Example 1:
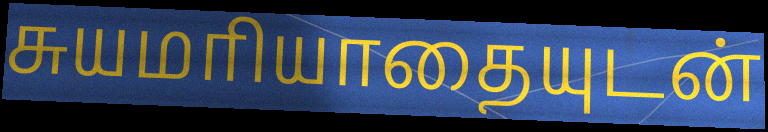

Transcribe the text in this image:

சுயமரியாதையுடன்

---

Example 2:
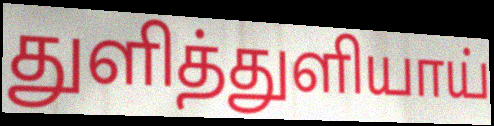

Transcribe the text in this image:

துளித்துளியாய்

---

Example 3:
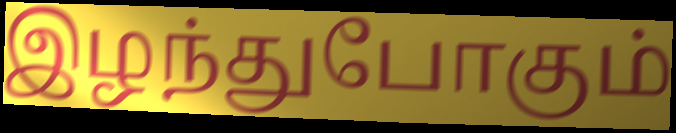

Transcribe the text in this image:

இழந்துபோகும்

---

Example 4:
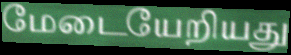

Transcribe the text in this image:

மேடையேறியது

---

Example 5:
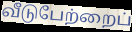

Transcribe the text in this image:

வீடுபேற்றைப்